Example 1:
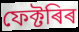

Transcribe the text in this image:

ফেক্টৰিৰ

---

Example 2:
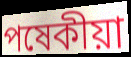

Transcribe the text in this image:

পষেকীয়া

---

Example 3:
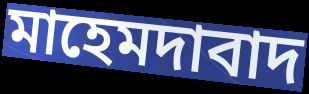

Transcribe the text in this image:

মাহেমদাবাদ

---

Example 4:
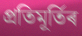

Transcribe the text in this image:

প্ৰতিমূৰ্তিৰ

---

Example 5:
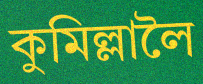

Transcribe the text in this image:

কুমিল্লালৈ